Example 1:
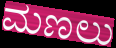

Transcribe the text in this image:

ಮಣಲು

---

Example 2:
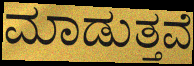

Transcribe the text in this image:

ಮಾಡುತ್ತವೆ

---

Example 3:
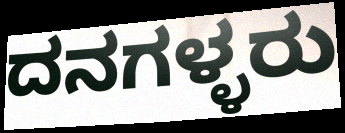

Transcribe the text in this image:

ದನಗಳ್ಳರು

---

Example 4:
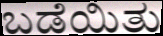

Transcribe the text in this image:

ಬಡೆಯಿತು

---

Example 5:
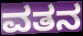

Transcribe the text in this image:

ವತನ